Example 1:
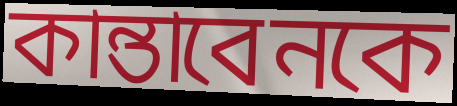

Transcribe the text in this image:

কান্তাবেনকে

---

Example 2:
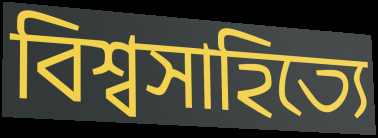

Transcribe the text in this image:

বিশ্বসাহিত্যে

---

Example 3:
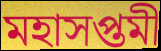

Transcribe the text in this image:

মহাসপ্তমী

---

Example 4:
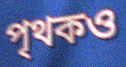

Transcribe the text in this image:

পৃথকও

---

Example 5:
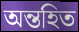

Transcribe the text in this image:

অন্তহিত